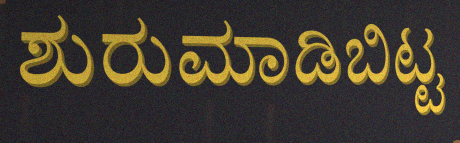
ಶುರುಮಾಡಿಬಿಟ್ಟ